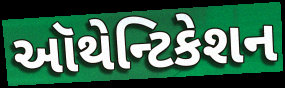
ઑથેન્ટિકેશન